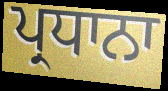
ਪ੍ਰਧਾਨਾ